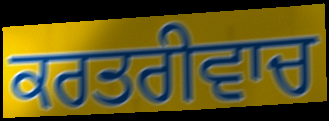
ਕਰਤਰੀਵਾਚ